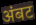
अंबट